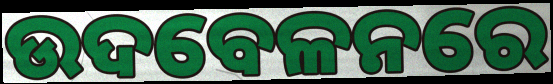
ଉଦବେଳନରେ